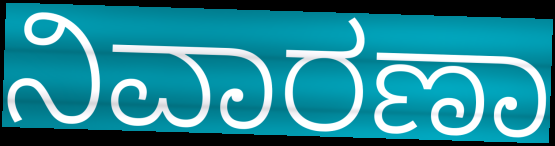
ನಿವಾರಣಾ